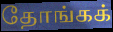
தோங்கக்